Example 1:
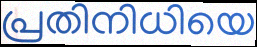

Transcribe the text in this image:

പ്രതിനിധിയെ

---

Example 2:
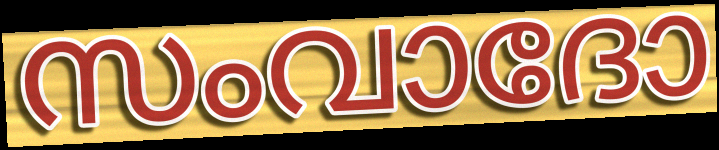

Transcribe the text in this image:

സംവാദോ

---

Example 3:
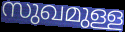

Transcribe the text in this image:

സുഖമുള്ള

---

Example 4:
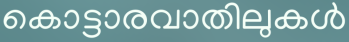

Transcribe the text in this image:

കൊട്ടാരവാതിലുകൾ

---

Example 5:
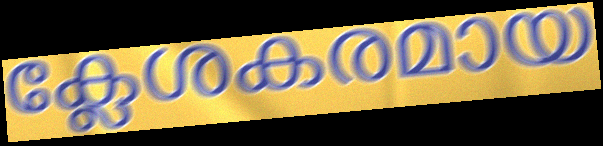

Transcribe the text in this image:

ക്ലേശകരമായ